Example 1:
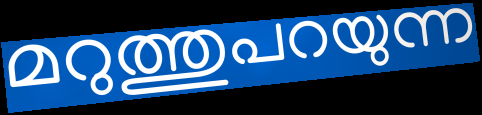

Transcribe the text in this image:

മറുത്തുപറയുന്ന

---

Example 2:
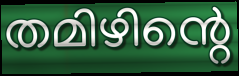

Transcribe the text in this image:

തമിഴിന്റെ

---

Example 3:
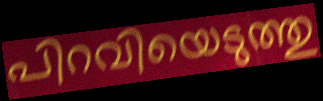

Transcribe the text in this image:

പിറവിയെടുത്തു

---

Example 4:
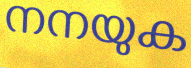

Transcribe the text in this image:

നനയുക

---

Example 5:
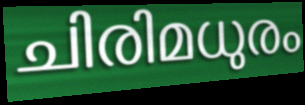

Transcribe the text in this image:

ചിരിമധുരം